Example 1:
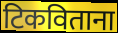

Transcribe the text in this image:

टिकविताना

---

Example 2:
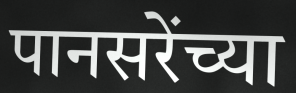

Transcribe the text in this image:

पानसरेंच्या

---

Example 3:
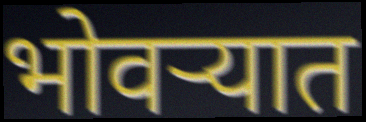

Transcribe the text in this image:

भोवऱ्यात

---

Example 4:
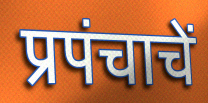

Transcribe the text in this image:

प्रपंचाचें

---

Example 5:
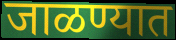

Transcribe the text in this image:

जाळण्यात